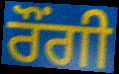
ਰੌਂਗੀ